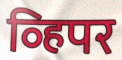
व्हिपर